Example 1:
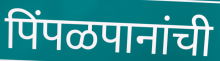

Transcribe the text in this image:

पिंपळपानांची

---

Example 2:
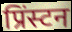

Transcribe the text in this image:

प्रिंस्टन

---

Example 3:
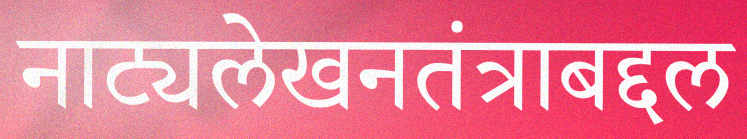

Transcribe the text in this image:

नाट्यलेखनतंत्राबद्दल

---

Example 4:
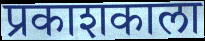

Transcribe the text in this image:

प्रकाशकाला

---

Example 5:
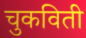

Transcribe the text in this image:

चुकविती